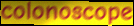
colonoscope